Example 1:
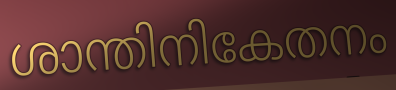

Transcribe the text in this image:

ശാന്തിനികേതനം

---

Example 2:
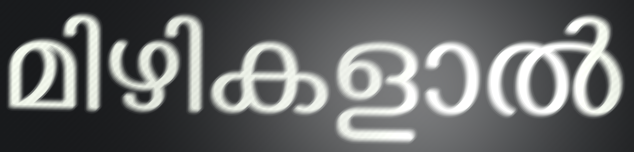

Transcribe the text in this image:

മിഴികളാൽ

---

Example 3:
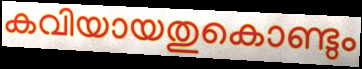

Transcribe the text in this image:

കവിയായതുകൊണ്ടും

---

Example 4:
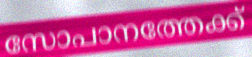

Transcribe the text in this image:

സോപാനത്തേക്ക്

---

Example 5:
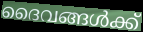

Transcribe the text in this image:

ദൈവങ്ങൾക്ക്